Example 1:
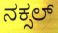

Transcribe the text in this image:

ನಕ್ಸಲ್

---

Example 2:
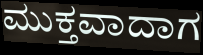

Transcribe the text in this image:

ಮುಕ್ತವಾದಾಗ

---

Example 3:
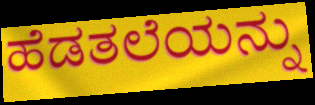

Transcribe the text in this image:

ಹೆಡತಲೆಯನ್ನು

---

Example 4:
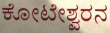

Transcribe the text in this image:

ಕೋಟೇಶ್ವರನ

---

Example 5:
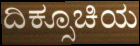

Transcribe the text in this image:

ದಿಕ್ಸೂಚಿಯ